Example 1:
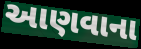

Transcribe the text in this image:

આણવાના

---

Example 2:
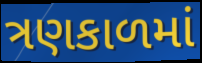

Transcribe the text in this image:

ત્રણકાળમાં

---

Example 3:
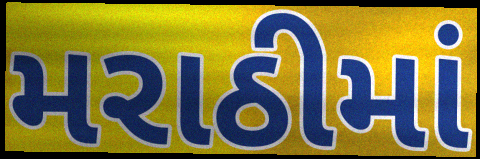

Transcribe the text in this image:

મરાઠીમાં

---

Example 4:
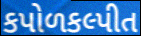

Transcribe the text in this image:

કપોળકલ્પીત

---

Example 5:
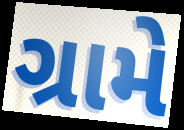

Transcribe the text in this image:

ગ્રામે